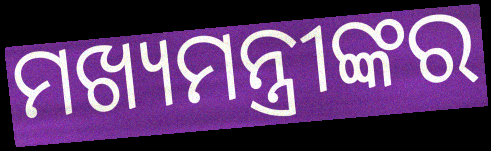
ମଖ୍ୟମନ୍ତ୍ରୀଙ୍କର